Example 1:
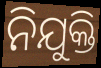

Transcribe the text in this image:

ନିଯୁକ୍ତି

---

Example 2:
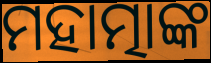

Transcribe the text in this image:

ମହାତ୍ମାଙ୍କ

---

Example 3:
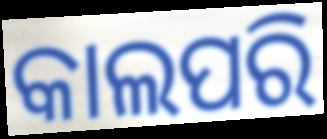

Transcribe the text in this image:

କାଲପରି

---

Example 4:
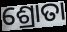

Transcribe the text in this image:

ଶ୍ରୋତା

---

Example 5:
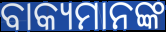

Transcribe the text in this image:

ବାକ୍ୟମାନଙ୍କ